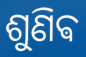
ଶୁଣିଵ